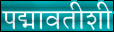
पद्मावतीशी